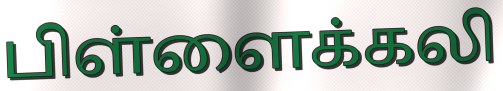
பிள்ளைக்கலி